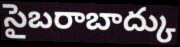
సైబరాబాద్కు